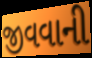
જીવવાની